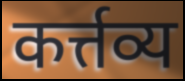
कर्त्तव्य